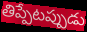
తిప్పేటప్పుడు